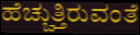
ಹೆಚ್ಚುತ್ತಿರುವಂತೆ